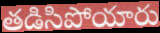
తడిసిపోయారు